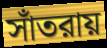
সাঁতরায়